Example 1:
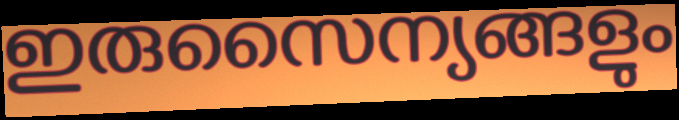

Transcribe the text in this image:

ഇരുസൈന്യങ്ങളും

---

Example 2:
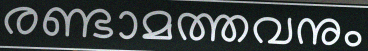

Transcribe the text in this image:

രണ്ടാമത്തവനും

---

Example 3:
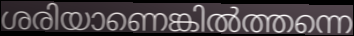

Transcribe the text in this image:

ശരിയാണെങ്കിൽത്തന്നെ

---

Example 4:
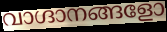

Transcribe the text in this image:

വാഗ്ദാനങ്ങളോ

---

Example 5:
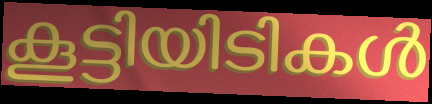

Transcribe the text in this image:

കൂട്ടിയിടികൾ